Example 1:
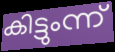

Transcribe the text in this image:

കിട്ടുംന്ന്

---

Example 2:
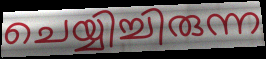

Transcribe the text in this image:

ചെയ്യിച്ചിരുന്ന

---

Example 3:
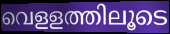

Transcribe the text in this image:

വെളളത്തിലൂടെ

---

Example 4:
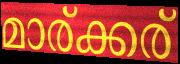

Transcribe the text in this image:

മാര്ക്കര്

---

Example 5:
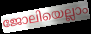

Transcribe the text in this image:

ജോലിയെല്ലാം